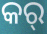
କର୍